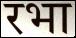
रभा